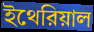
ইথেরিয়াল